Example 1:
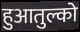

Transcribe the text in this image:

हुआतुल्को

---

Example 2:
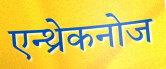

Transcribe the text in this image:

एन्थ्रेकनोज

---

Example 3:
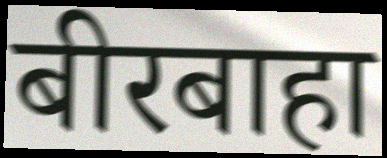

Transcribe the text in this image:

बीरबाहा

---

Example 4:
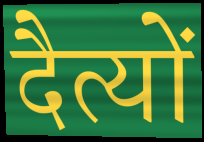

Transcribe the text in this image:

दैत्यों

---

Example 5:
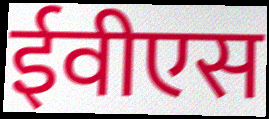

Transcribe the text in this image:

ईवीएस